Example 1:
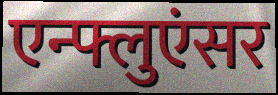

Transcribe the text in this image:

एन्फ्लुएंसर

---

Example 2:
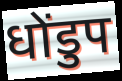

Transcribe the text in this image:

धोंडुप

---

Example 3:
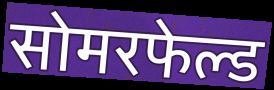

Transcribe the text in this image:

सोमरफेल्ड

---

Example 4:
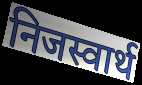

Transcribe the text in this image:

निजस्वार्थ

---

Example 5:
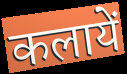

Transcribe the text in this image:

कलायें